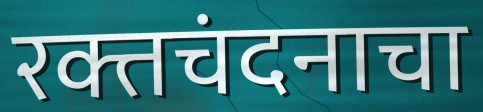
रक्तचंदनाचा